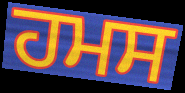
ਹਮਸ